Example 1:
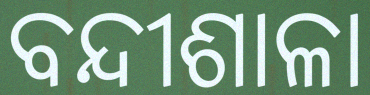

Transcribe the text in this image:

ବନ୍ଦୀଶାଳା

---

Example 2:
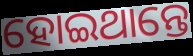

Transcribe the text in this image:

ହୋଇଥାନ୍ତେ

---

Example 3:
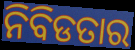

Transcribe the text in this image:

ନିବିଡତାର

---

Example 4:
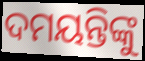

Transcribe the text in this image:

ଦମୟନ୍ତିଙ୍କୁ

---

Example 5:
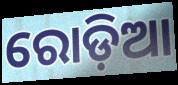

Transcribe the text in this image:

ରୋଡ଼ିଆ